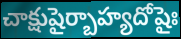
చాక్షుషైర్బాహ్యదోషైః